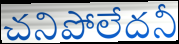
చనిపోలేదనీ